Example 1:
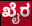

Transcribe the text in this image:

ಖೈರ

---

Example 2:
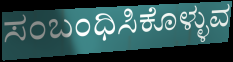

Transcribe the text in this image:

ಸಂಬಂಧಿಸಿಕೊಳ್ಳುವ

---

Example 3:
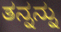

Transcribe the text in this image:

ತನ್ನನ್ನು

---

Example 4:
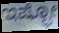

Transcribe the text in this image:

ಇಷ್ಟೋ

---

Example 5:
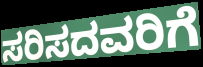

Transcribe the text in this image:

ಸರಿಸದವರಿಗೆ